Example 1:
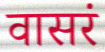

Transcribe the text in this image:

वासरं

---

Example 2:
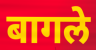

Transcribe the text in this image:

बागले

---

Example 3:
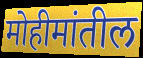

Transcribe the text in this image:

मोहीमांतील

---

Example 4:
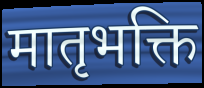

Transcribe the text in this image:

मातृभक्ति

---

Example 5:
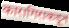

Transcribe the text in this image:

कारागिराकडून